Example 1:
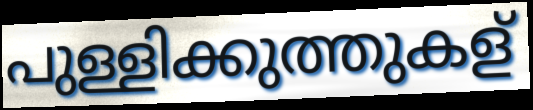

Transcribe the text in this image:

പുള്ളിക്കുത്തുകള്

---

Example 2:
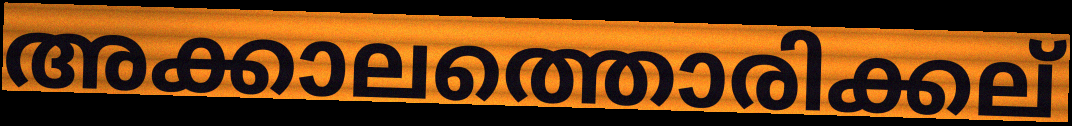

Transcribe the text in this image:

അക്കാലത്തൊരിക്കല്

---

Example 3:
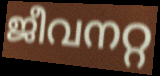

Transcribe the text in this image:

ജീവനറ്റ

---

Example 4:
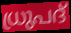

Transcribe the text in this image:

ധ്രുപദ്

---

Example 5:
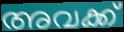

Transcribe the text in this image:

അവക്ക്